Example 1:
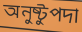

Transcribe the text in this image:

অনুষ্টুপদা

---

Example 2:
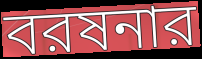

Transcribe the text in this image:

বরষনার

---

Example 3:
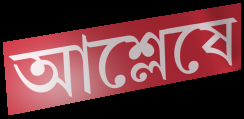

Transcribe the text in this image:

আশ্লেষে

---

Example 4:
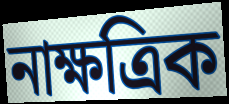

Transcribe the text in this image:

নাক্ষত্রিক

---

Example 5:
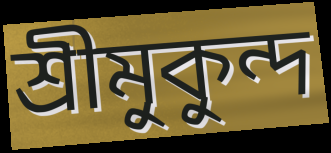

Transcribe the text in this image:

শ্রীমুকুন্দ